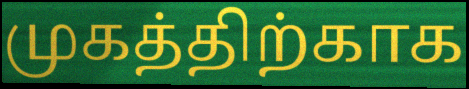
முகத்திற்காக